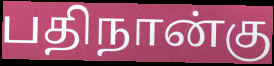
பதிநான்கு